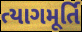
ત્યાગમૂર્તિ